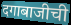
दगाबाजीची